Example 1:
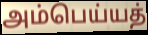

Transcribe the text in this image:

அம்பெய்யத்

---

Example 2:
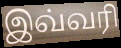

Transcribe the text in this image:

இவ்வரி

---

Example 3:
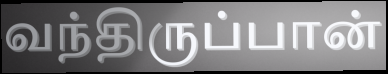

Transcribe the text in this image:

வந்திருப்பான்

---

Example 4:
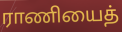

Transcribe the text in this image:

ராணியைத்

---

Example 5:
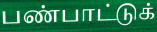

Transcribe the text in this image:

பண்பாட்டுக்